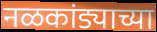
नळकांड्याच्या